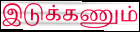
இடுக்கணும்